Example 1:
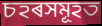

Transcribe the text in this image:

চহৰসমূহত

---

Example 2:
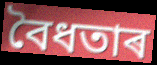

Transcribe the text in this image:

বৈধতাৰ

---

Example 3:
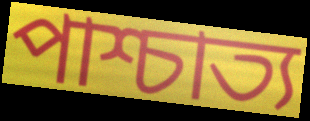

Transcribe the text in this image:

পাশ্চাত্য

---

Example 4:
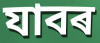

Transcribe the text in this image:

যাবৰ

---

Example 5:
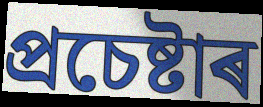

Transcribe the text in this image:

প্ৰচেষ্টাৰ